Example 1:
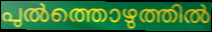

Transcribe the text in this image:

പുൽത്തൊഴുത്തിൽ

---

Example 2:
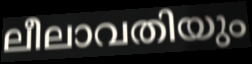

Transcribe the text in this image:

ലീലാവതിയും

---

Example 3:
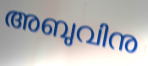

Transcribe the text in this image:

അബുവിനു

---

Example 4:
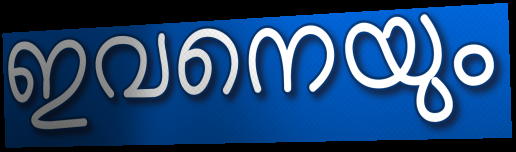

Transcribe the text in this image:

ഇവനെയും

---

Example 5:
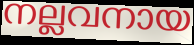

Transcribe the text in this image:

നല്ലവനായ